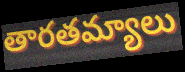
తారతమ్యాలు